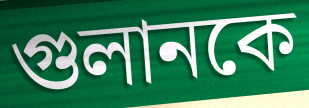
গুলানকে